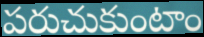
పరుచుకుంటాం